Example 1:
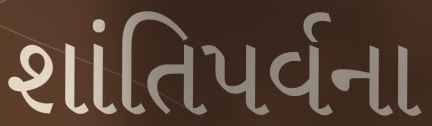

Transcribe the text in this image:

શાંતિપર્વના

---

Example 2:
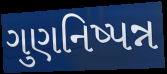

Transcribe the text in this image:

ગુણનિષ્પન્ન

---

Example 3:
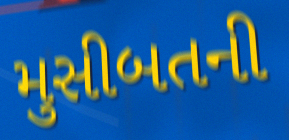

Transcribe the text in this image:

મુસીબતની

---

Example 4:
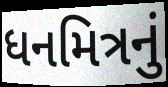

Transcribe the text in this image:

ધનમિત્રનું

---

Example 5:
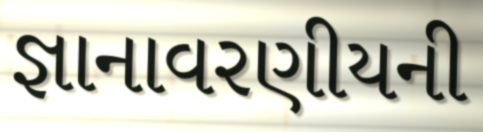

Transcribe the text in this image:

જ્ઞાનાવરણીયની